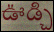
ఊడ్చి